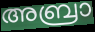
അബ്രാ